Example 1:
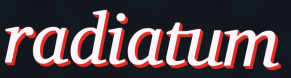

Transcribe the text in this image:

radiatum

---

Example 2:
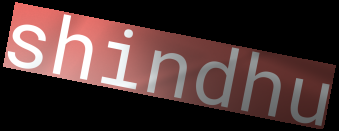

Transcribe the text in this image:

shindhu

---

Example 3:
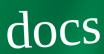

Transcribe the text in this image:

docs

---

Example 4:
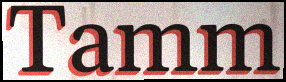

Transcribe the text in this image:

Tamm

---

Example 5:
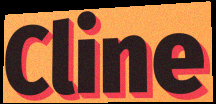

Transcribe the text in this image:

Cline